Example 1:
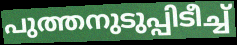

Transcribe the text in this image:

പുത്തനുടുപ്പിടീച്ച്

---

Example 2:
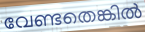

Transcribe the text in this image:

വേണ്ടതെങ്കിൽ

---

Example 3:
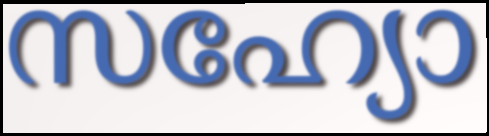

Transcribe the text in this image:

സഹ്യോ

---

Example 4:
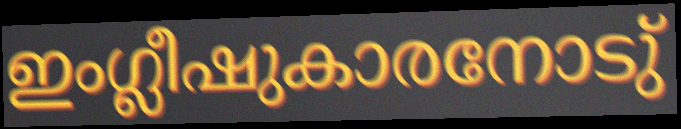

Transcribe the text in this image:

ഇംഗ്ലീഷുകാരനോടു്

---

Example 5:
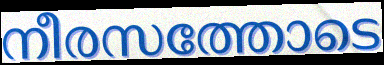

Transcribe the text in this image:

നീരസത്തോടെ